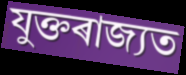
যুক্তৰাজ্যত